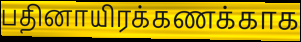
பதினாயிரக்கணக்காக